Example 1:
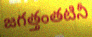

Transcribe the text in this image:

జగత్తంతటినీ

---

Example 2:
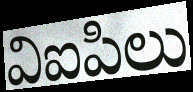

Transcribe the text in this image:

విఐపిలు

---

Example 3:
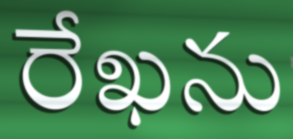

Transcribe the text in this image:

రేఖను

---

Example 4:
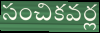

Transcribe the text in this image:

సంచికవర్ల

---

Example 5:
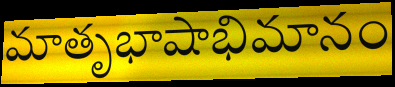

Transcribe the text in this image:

మాతృభాషాభిమానం